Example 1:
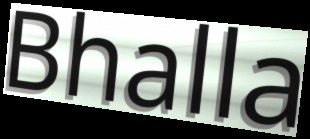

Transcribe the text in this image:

Bhalla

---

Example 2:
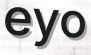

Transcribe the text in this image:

eyo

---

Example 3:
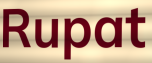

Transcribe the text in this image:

Rupat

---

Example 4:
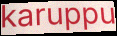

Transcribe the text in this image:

karuppu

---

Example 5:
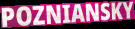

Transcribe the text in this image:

POZNIANSKY